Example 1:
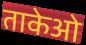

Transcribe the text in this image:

ताकेओ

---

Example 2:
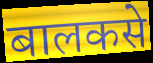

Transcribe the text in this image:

बालकसे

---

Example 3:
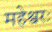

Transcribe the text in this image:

महेश्वरः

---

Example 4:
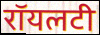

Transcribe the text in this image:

रॉयलटी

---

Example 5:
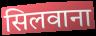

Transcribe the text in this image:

सिलवाना